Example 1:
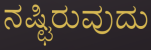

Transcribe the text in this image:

ನಷ್ಟಿರುವುದು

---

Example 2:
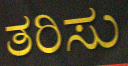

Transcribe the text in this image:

ತರಿಸು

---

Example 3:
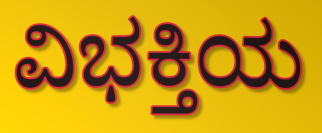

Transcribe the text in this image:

ವಿಭಕ್ತಿಯ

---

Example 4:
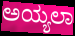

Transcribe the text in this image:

ಅಯ್ಯಲಾ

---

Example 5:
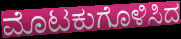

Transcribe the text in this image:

ಮೊಟಕುಗೊಳಿಸಿದ